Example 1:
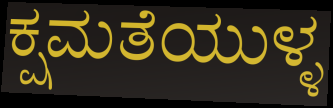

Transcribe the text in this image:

ಕ್ಷಮತೆಯುಳ್ಳ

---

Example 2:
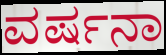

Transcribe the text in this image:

ವರ್ಷನಾ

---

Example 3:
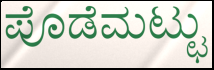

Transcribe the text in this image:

ಪೊಡೆಮಟ್ಟು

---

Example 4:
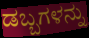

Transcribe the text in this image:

ಡಬ್ಬಗಳನ್ನು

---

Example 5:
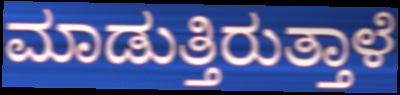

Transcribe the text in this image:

ಮಾಡುತ್ತಿರುತ್ತಾಳೆ